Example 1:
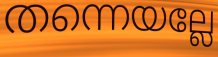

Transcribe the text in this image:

തന്നെയല്ലേ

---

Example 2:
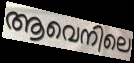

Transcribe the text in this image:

ആവെനിലെ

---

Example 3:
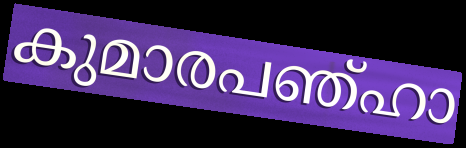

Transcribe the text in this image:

കുമാരപഞ്ഹാ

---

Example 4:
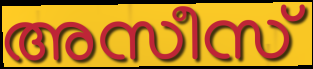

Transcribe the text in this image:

അസീസ്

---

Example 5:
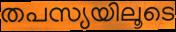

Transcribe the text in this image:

തപസ്യയിലൂടെ